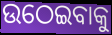
ଉଠେଇବାକୁ